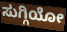
ಸುಗ್ಗಿಯೋ